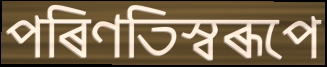
পৰিণতিস্বৰূপে